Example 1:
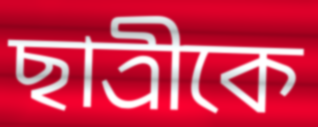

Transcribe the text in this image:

ছাত্রীকে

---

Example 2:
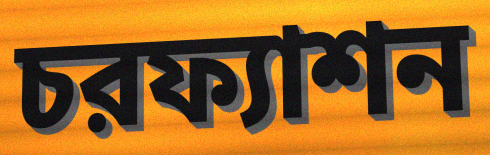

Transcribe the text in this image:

চরফ্যাশন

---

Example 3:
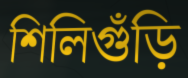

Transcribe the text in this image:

শিলিগুঁড়ি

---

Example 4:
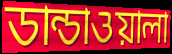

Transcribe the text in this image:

ডান্ডাওয়ালা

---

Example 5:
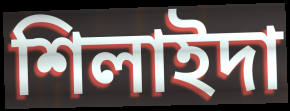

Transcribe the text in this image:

শিলাইদা